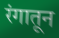
रंगातून